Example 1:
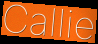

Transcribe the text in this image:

Callie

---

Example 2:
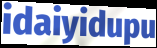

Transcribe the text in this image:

idaiyidupu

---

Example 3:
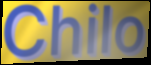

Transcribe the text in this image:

Chilo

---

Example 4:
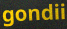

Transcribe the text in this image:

gondii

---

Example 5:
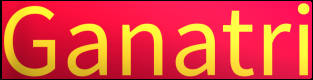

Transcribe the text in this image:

Ganatri